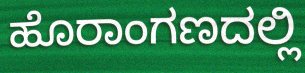
ಹೊರಾಂಗಣದಲ್ಲಿ